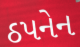
ઠપનેન